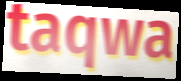
taqwa